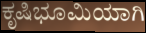
ಕೃಷಿಭೂಮಿಯಾಗಿ